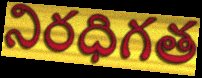
నిరధిగత